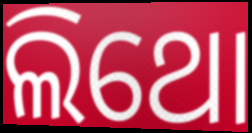
ଲିଥୋ